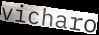
vicharo